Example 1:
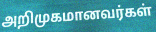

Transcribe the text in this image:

அறிமுகமானவர்கள்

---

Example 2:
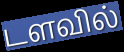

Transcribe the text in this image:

டளவில்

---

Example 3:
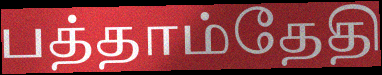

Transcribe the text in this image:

பத்தாம்தேதி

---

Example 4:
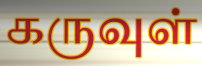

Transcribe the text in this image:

கருவுள்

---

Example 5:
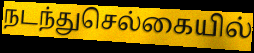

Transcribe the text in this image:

நடந்துசெல்கையில்